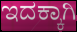
ಇದಕ್ಕಾಗಿ